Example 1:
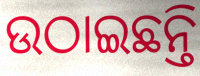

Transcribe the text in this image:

ଉଠାଇଛନ୍ତି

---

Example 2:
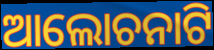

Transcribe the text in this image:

ଆଲୋଚନାଟି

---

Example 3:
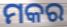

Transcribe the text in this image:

ମକର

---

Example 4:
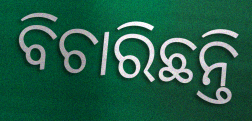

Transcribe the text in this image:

ବିଚାରିଛନ୍ତି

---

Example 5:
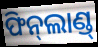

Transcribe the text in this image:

ଫିନ୍‌ଲାଣ୍ଡ୍